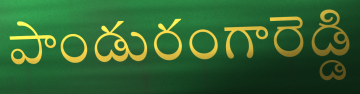
పాండురంగారెడ్డి